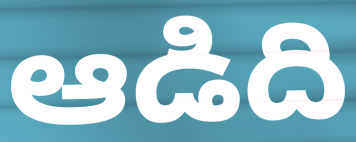
ఆడిది